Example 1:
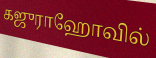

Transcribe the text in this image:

கஜுராஹோவில்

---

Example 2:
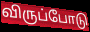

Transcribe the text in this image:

விருப்போடு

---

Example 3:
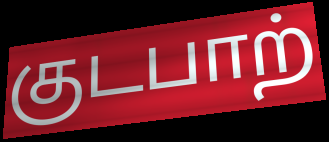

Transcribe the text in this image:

குடபாற்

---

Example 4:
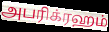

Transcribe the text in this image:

அபரிக்ரஹம்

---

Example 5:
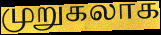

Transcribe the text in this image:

முறுகலாக